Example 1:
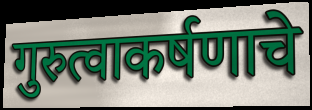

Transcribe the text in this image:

गुरुत्वाकर्षणाचे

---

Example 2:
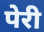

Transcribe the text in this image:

पेरी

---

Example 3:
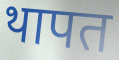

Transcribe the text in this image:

थापत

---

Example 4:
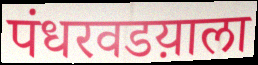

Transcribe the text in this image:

पंधरवडय़ाला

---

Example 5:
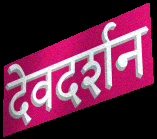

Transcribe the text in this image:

देवदर्शन